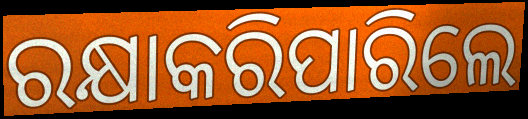
ରକ୍ଷାକରିପାରିଲେ